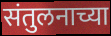
संतुलनाच्या